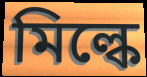
মিল্কে